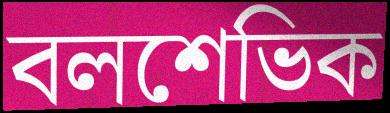
বলশেভিক